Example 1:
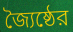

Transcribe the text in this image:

জ্যৈষ্ঠের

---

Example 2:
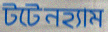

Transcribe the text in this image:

টটেনহ্যাম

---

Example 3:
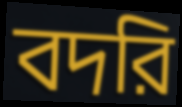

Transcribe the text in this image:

বদরি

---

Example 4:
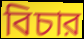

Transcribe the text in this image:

বিচার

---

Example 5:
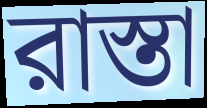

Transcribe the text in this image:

রাস্তা